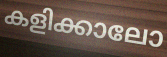
കളിക്കാലോ